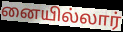
னையில்லார்